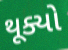
થૂક્યો